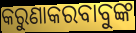
କରୁଣାକରବାବୁଙ୍କ